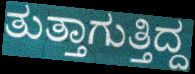
ತುತ್ತಾಗುತ್ತಿದ್ದ